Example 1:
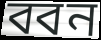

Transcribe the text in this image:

ববন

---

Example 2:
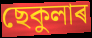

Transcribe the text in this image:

ছেকুলাৰ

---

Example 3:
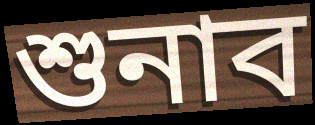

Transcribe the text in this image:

শুনাব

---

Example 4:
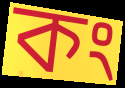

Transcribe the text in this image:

কং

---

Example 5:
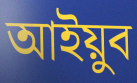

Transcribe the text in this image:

আইয়ুব